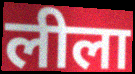
लीला